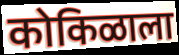
कोकिळाला